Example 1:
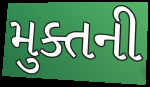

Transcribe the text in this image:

મુક્તની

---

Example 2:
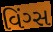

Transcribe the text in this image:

વિંગ્સ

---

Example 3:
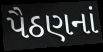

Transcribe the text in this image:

પૈઠણનાં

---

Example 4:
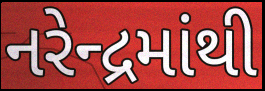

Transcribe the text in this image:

નરેન્દ્રમાંથી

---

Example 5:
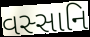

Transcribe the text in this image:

વસ્સાનિ